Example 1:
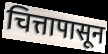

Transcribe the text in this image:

चित्तापासून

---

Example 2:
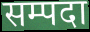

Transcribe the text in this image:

सम्पदा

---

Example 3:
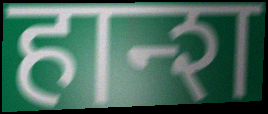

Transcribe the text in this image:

हान्श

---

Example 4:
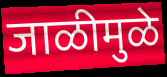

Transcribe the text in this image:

जाळीमुळे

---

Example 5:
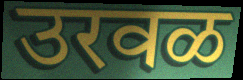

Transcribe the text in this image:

उरवळ